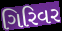
ગિરિવર